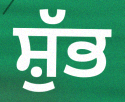
ਸ਼ੁੱਭ